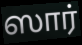
ஸார்